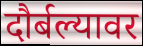
दौर्बल्यावर